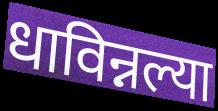
धाविन्नल्या